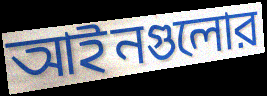
আইনগুলোর